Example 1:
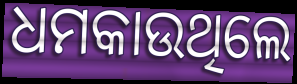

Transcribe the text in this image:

ଧମକାଉଥିଲେ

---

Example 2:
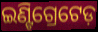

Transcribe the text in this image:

ଇଣ୍ଟିଗ୍ରେଟେଡ଼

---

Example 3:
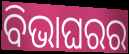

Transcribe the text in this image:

ବିଭାଘରର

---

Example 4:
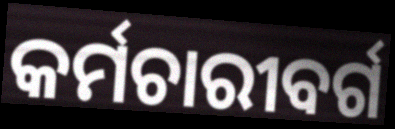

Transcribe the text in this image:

କର୍ମଚାରୀବର୍ଗ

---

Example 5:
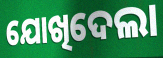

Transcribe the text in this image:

ଯୋଖିଦେଲା